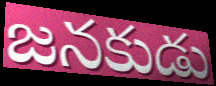
జనకుడు